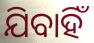
ଯିବାହିଁ